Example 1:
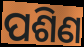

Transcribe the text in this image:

ପଶିଣ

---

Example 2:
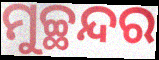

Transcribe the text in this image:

ମୁଚ୍ଛନ୍ଦର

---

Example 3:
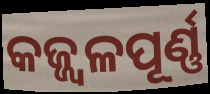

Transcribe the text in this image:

କଜ୍ଜ୍ୱଳପୂର୍ଣ୍ଣ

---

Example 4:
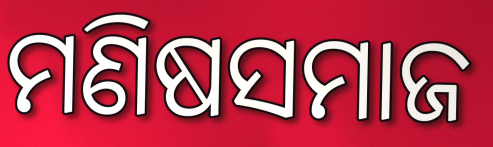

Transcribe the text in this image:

ମଣିଷସମାଜ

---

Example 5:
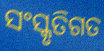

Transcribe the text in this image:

ସଂସ୍କୃତିଗତ